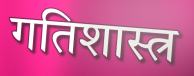
गतिशास्त्र